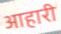
आहारी